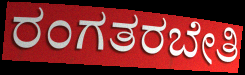
ರಂಗತರಬೇತಿ